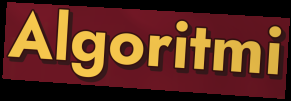
Algoritmi